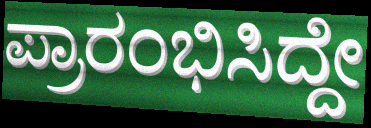
ಪ್ರಾರಂಭಿಸಿದ್ದೇ